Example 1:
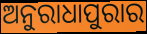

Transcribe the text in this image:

ଅନୁରାଧାପୁରାର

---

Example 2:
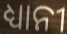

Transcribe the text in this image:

ଧ୍ୟାନୀ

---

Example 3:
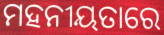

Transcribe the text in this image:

ମହନୀୟତାରେ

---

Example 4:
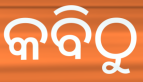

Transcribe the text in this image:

କବିଠୁ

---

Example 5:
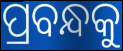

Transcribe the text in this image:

ପ୍ରବନ୍ଧକୁ